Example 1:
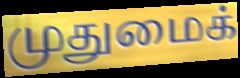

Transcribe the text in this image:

முதுமைக்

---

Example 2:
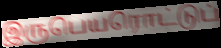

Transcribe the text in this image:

இருபெயரொட்டுப்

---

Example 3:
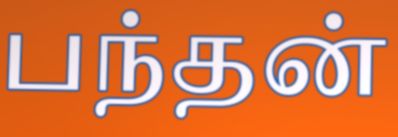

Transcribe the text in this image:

பந்தன்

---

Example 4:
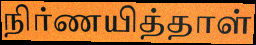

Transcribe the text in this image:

நிர்ணயித்தாள்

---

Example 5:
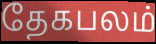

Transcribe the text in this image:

தேகபலம்